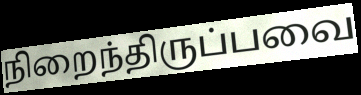
நிறைந்திருப்பவை